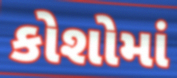
કોશોમાં